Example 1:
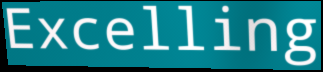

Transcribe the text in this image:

Excelling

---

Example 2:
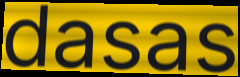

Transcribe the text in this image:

dasas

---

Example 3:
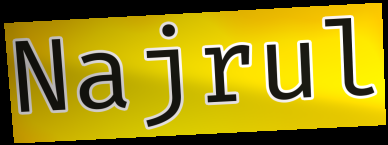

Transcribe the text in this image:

Najrul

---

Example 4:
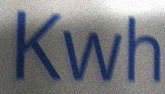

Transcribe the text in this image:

Kwh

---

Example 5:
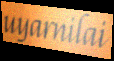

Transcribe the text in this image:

uyarnilai